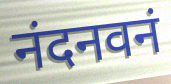
नंदनवनं